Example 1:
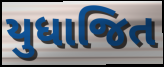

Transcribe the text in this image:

યુધાજિત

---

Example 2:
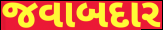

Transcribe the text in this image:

જવાબદાર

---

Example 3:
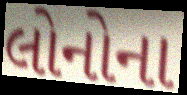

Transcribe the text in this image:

લોનોના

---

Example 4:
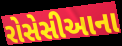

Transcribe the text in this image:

રોસેસીઆના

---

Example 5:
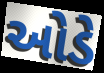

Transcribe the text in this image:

ઓડે